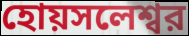
হোয়সলেশ্বর